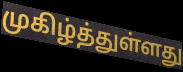
முகிழ்த்துள்ளது